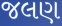
જલણ